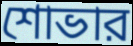
শোভার